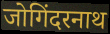
जोगिंदरनाथ